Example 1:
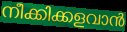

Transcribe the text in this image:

നീക്കിക്കളവാൻ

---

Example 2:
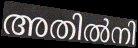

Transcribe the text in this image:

അതിൽനി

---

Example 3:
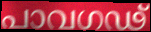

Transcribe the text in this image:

പാവഗഢ്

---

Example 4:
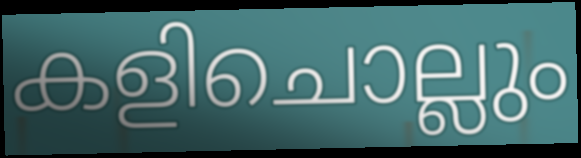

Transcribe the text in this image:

കളിചൊല്ലും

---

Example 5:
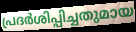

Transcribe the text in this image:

പ്രദർശിപ്പിച്ചതുമായ